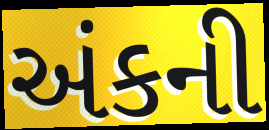
અંકની